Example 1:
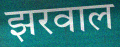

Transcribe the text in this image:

झरवाल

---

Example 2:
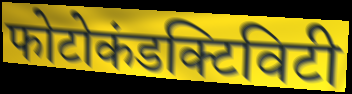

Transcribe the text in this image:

फोटोकंडक्टिविटी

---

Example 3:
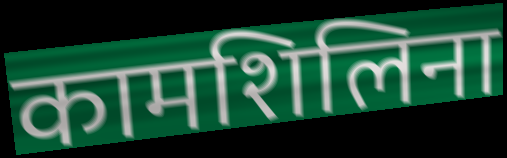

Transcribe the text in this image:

कामशिलिना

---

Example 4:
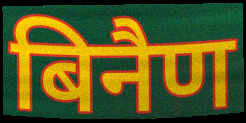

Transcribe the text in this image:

बिनैण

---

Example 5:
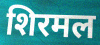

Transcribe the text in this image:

शिरमल